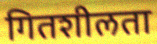
गितशीलता